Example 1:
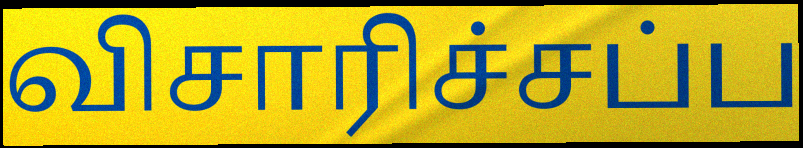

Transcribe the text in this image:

விசாரிச்சப்ப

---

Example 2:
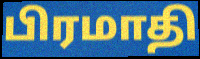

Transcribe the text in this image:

பிரமாதி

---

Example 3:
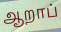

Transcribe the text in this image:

ஆறாப்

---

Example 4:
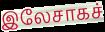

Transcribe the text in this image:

இலேசாகச்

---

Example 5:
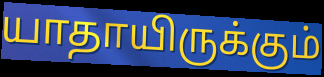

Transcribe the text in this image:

யாதாயிருக்கும்